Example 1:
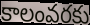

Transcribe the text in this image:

కాలంవరకు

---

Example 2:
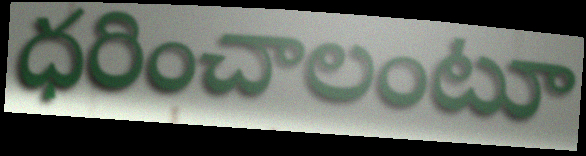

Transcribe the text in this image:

ధరించాలంటూ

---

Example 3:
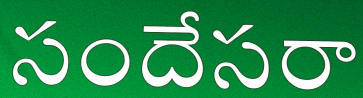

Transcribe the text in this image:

సందేసరా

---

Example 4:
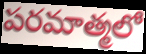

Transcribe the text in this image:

పరమాత్మలో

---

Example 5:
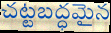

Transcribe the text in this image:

చట్టబద్ధమైన